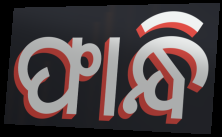
ଫାନ୍ଧି